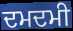
ਦਮਦਮੀ